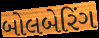
બોલબેરિંગ